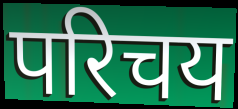
परिचय